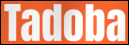
Tadoba